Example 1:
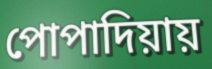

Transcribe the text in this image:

পোপাদিয়ায়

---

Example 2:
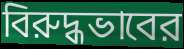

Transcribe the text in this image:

বিরুদ্ধভাবের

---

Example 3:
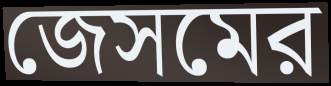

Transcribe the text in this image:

জেসমের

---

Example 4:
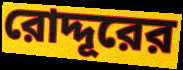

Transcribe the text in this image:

রোদ্দূরের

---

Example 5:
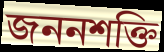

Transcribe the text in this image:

জননশক্তি